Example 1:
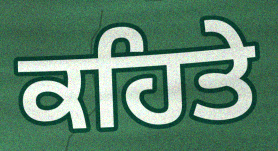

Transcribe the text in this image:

ਕਹਿਤੇ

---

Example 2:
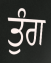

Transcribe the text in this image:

ਤੁੰਗ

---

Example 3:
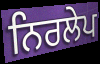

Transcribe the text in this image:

ਨਿਰਲੇਪ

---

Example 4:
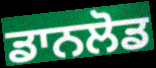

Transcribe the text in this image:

ਡਾਨਲੋਡ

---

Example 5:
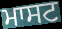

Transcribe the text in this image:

ਮਾਸਟ